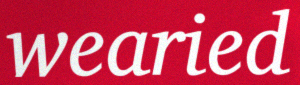
wearied